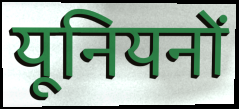
यूनियनों